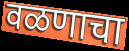
वळणाचा